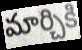
మార్చికి